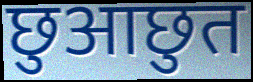
छुआछुत